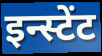
इन्स्टेंट